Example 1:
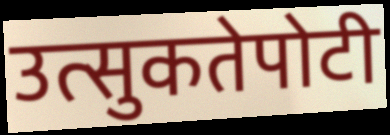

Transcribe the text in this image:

उत्सुकतेपोटी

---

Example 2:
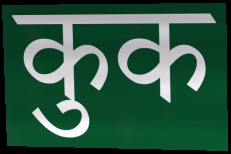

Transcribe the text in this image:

कुक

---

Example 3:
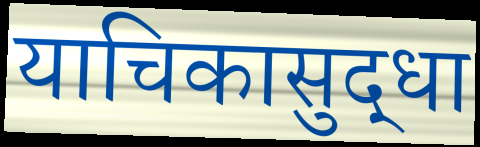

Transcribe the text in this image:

याचिकासुद्धा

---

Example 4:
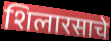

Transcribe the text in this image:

शिलारसाचे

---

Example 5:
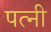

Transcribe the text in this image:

पत्नी